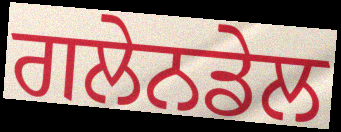
ਗਲੇਨਡੇਲ